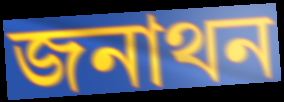
জনাথন